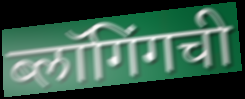
ब्लॉगिंगची